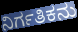
ನಿರ್ಗತಿಕನು